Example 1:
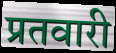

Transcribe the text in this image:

प्रतवारी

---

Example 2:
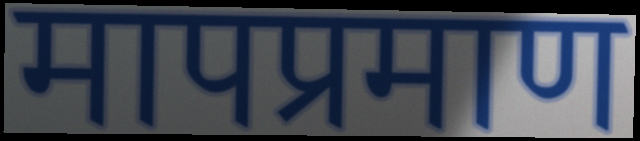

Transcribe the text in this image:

मापप्रमाण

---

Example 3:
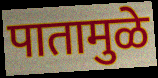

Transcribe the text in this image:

पातामुळे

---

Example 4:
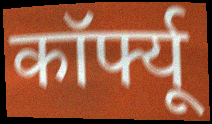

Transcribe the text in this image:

कॉर्फ्यू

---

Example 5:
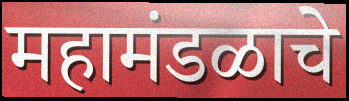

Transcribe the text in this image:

महामंडळाचे